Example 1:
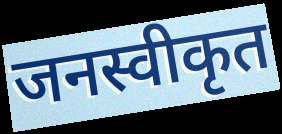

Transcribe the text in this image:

जनस्वीकृत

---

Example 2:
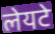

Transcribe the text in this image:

लेयटे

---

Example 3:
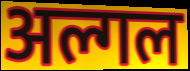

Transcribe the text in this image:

अल्गल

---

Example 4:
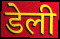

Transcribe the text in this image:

डेली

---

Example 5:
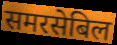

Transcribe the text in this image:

समरसेबिल